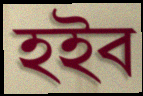
হইব